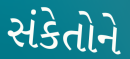
સંકેતોને